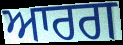
ਆਰਗ